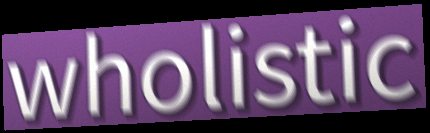
wholistic